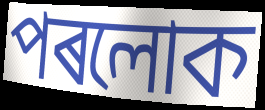
পৰলোক